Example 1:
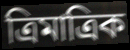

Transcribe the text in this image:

ত্রিমাত্রিক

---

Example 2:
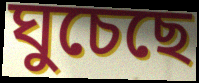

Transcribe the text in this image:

ঘুচেছে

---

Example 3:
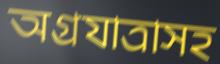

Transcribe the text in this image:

অগ্রযাত্রাসহ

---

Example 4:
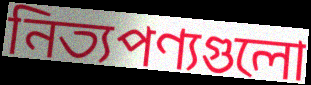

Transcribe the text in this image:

নিত্যপণ্যগুলো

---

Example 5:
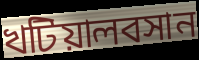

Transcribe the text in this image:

খটিয়ালবসান